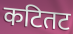
कटितट